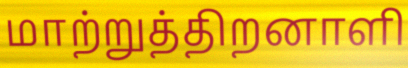
மாற்றுத்திறனாளி